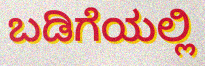
ಬಡಿಗೆಯಲ್ಲಿ